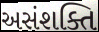
અસંશક્તિ